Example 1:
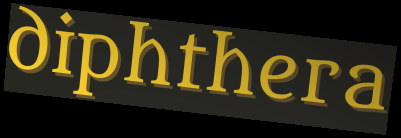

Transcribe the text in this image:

diphthera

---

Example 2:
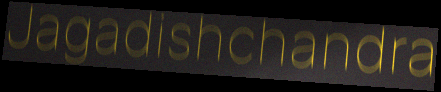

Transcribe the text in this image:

Jagadishchandra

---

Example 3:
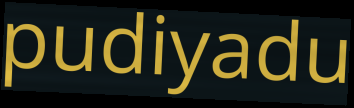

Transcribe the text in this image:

pudiyadu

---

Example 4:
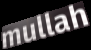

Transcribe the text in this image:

mullah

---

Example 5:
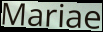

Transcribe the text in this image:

Mariae